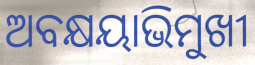
ଅବକ୍ଷୟାଭିମୁଖୀ